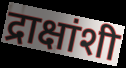
द्राक्षांशी